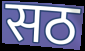
सठ